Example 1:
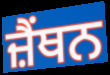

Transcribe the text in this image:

ਜ਼ੈਂਥਨ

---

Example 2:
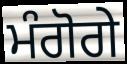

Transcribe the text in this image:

ਮੰਗੋਗੇ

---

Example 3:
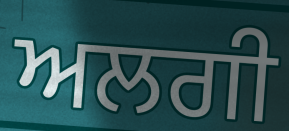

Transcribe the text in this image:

ਅਲਗੀ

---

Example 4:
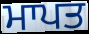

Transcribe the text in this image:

ਮਾਪਤ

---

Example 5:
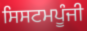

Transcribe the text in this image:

ਸਿਸਟਮਪੂੰਜੀ